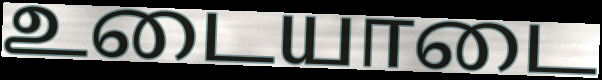
உடையாடை